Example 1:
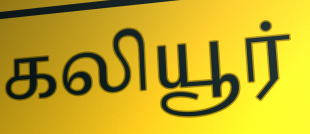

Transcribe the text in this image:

கலியூர்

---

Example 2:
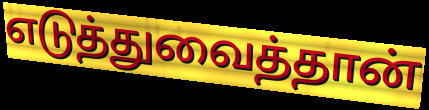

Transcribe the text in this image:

எடுத்துவைத்தான்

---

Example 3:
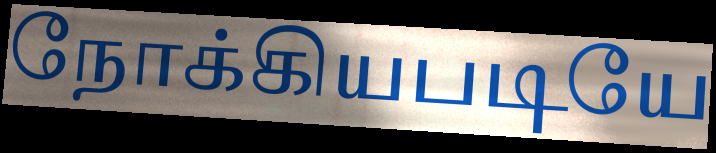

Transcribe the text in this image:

நோக்கியபடியே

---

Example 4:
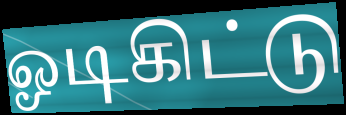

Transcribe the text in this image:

ஓடிகிட்டு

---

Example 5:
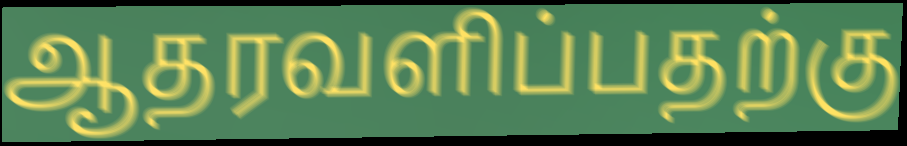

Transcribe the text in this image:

ஆதரவளிப்பதற்கு